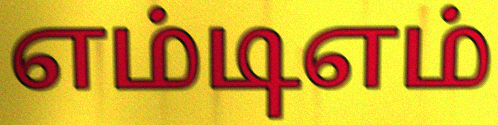
எம்டிஎம்